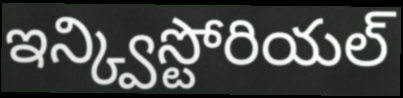
ఇన్క్విస్టోరియల్